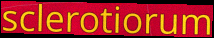
sclerotiorum